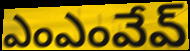
ఎంఎంవేవ్